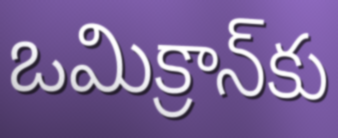
ఒమిక్రాన్‌కు